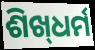
ଶିଖ୍‌ଧର୍ମ